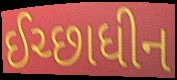
ઈચ્છાધીન